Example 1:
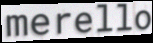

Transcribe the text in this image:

merello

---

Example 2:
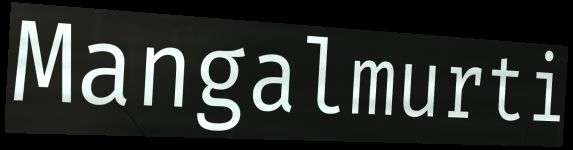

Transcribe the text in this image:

Mangalmurti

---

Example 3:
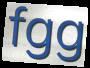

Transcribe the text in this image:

fgg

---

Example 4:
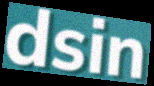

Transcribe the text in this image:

dsin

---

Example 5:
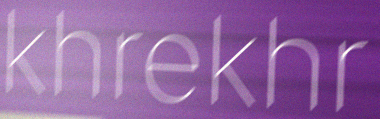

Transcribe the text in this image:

khrekhr